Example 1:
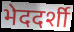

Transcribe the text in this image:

भेददर्शी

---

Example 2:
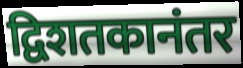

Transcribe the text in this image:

द्विशतकानंतर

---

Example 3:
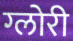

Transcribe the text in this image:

ग्लोरी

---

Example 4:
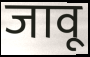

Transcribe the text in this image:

जावू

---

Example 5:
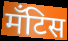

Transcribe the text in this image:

मँटिस